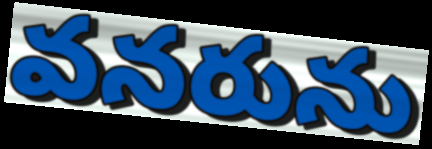
వనరును